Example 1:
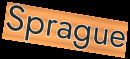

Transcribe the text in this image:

Sprague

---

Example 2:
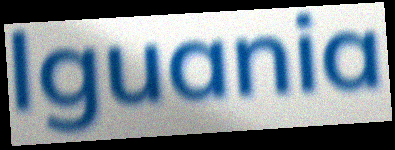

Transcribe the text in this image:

Iguania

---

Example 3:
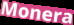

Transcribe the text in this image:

Monera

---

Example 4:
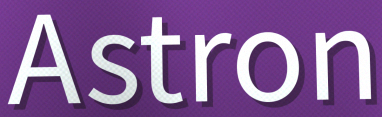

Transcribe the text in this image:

Astron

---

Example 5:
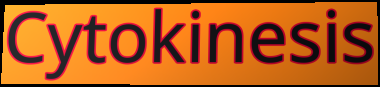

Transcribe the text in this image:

Cytokinesis